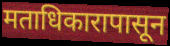
मताधिकारापासून